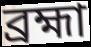
ব্ৰহ্মা